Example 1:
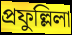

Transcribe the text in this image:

প্রফুল্লিলা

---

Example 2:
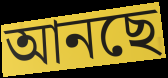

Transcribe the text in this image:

আনছে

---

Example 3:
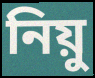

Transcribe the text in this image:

নিয়ু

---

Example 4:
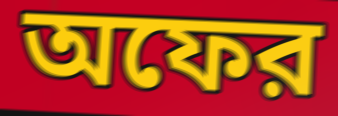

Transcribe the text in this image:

অফের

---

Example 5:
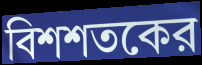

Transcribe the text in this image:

বিশশতকের